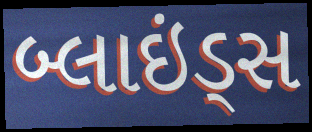
બ્લાઇંડ્સ